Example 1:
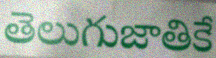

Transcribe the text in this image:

తెలుగుజాతికే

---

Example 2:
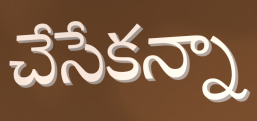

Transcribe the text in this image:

చేసేకన్నా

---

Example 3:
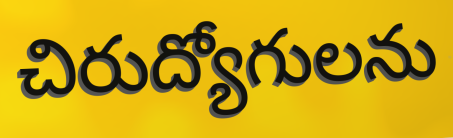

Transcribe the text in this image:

చిరుద్యోగులను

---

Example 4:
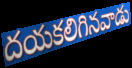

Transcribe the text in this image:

దయకలిగినవాడు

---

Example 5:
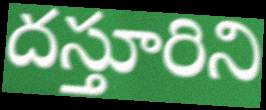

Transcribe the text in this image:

దస్తూరిని